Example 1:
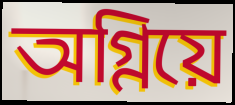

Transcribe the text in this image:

অগ্নিয়ে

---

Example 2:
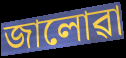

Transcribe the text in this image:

জালোৱা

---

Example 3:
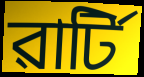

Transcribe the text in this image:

ৱাৰ্টি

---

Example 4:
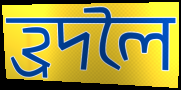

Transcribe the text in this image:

হ্ৰদলৈ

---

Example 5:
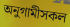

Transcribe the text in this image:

অনুগামীসকল